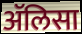
ॲलिसा